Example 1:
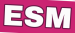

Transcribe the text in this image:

ESM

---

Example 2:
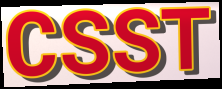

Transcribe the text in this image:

CSST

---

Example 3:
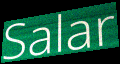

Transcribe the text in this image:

Salar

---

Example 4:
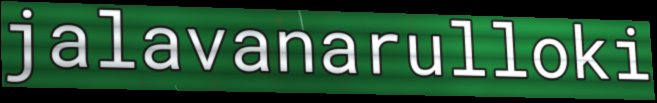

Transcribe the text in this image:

jalavanarulloki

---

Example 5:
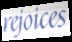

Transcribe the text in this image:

rejoices